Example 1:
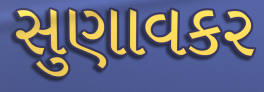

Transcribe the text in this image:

સુણાવકર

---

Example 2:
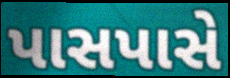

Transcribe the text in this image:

પાસપાસે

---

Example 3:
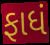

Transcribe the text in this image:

ફાધં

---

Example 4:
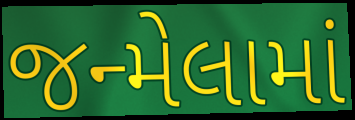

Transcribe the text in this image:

જન્મેલામાં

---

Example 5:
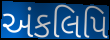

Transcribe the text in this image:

અંકલિપિ